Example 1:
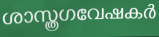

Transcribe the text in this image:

ശാസ്ത്രഗവേഷകർ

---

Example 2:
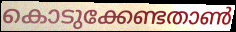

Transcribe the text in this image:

കൊടുക്കേണ്ടതാൺ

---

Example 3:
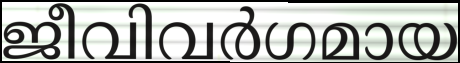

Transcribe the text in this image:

ജീവിവർഗമായ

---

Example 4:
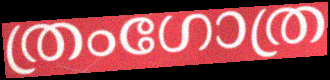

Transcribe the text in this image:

ത്രംഗോത്ര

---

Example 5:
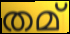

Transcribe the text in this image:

തമ്